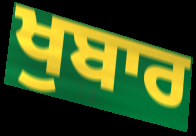
ਖੁਬਾਰ